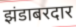
झंडाबरदार